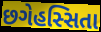
છગેહસ્સિતા